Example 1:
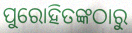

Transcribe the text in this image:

ପୁରୋହିତଙ୍କଠାରୁ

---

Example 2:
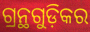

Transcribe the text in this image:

ଗ୍ରନ୍ଥଗୁଡ଼ିକର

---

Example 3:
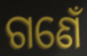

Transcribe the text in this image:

ଗଣେଁ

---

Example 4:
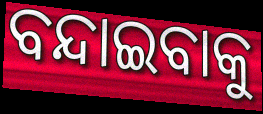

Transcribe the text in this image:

ବନ୍ଦାଇବାକୁ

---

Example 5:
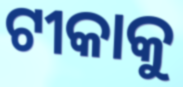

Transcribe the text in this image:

ଟୀକାକୁ